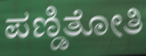
ಪಣ್ಡಿತೋತಿ